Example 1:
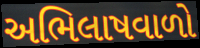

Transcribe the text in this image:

અભિલાષવાળો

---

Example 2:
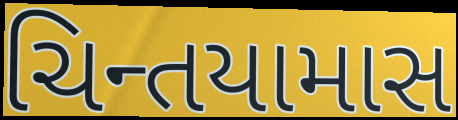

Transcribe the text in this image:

ચિન્તયામાસ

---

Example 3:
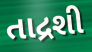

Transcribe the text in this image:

તાદ્રશી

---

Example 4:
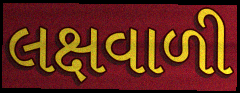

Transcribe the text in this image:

લક્ષવાળી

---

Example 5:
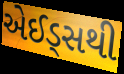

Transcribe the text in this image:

એઈડ્સથી